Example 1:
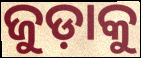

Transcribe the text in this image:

ଜୁଡ଼ାକୁ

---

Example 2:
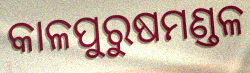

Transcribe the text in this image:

କାଳପୁରୁଷମଣ୍ଡଳ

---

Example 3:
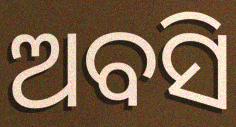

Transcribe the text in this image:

ଅବସି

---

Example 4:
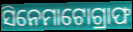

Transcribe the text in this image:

ସିନେମାଟୋଗ୍ରାଫ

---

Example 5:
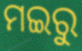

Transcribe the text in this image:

ମଇରୁ